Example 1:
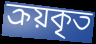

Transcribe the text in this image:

ক্রয়কৃত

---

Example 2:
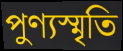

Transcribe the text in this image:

পুণ্যস্মৃতি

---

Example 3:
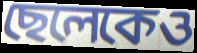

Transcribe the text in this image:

ছেলেকেও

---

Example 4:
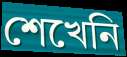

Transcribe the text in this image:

শেখেনি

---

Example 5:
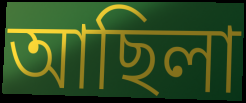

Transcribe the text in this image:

আছিলা